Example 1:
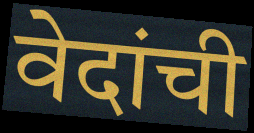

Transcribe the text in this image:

वेदांची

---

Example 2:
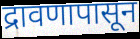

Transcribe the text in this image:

द्रावणापासून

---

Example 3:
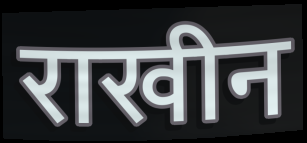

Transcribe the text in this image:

राखीन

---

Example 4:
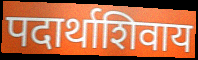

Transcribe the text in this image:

पदार्थाशिवाय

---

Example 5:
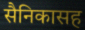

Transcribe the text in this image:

सैनिकासह